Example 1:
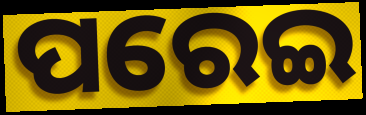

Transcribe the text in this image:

ପରେଇ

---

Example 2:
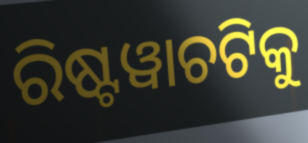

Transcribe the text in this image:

ରିଷ୍ଟୱାଚଟିକୁ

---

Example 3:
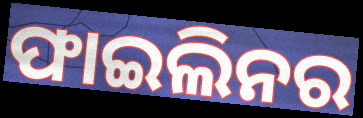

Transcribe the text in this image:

ଫାଇଲିନର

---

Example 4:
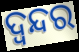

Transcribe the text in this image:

ଦ୍ବନ୍ଦର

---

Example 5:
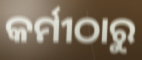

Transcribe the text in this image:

କର୍ମୀଠାରୁ